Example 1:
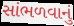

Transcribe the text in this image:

સાંભળવાનું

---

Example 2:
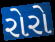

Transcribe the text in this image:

રોરો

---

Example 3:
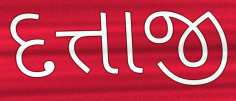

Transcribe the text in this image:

દત્તાજી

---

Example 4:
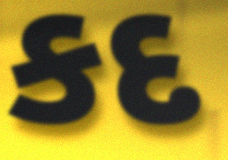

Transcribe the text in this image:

કદ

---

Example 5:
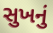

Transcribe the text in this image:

સુખનું